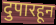
दुपारहून